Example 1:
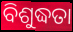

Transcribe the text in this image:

ବିଶୁଦ୍ଧତା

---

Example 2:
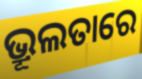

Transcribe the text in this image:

ଭ୍ରୂଲତାରେ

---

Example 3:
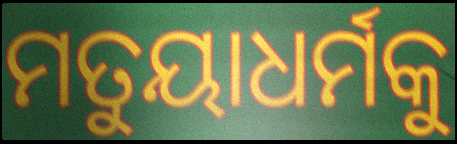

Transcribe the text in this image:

ମତୁୟାଧର୍ମକୁ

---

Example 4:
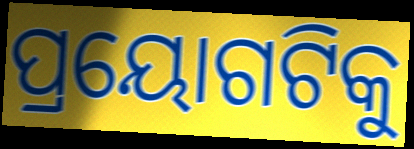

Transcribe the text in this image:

ପ୍ରୟୋଗଟିକୁ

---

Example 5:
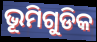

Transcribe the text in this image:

ଭୂମିଗୁଡିକ